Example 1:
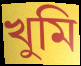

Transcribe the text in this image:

খুমি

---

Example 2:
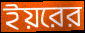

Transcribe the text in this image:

ইয়রের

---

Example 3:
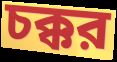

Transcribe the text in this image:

চক্কর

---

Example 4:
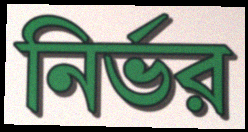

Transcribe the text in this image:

নির্ভর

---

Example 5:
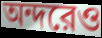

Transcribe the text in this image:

অন্দরেও